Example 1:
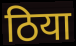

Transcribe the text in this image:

ठिया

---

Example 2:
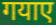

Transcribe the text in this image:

गयाए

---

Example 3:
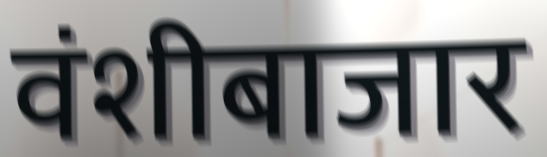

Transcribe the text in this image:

वंशीबाजार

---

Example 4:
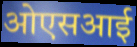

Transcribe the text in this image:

ओएसआई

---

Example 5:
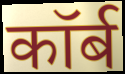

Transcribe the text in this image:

कॉर्ब